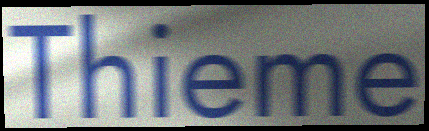
Thieme